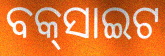
ବକ୍‌ସାଇଟ